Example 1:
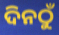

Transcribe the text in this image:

ଦିନଠୁଁ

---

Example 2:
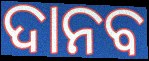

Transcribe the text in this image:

ଦାନବ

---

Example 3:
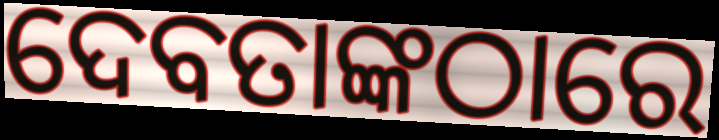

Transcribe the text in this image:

ଦେବତାଙ୍କଠାରେ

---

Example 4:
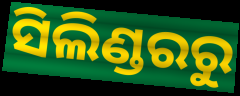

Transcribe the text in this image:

ସିଲିଣ୍ଡରରୁ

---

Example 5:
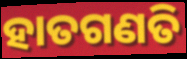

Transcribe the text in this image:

ହାତଗଣତି